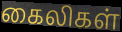
கைலிகள்